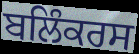
ਬਲਿੰਕਰਸ